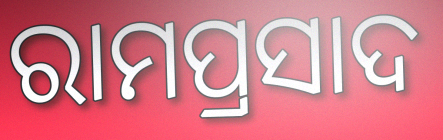
ରାମପ୍ରସାଦ